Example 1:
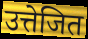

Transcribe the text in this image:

उत्तेजित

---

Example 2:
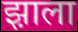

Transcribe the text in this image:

झ़ाला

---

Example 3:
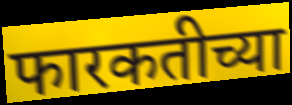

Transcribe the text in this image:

फारकतीच्या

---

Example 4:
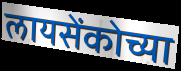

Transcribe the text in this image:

लायसेंकोच्या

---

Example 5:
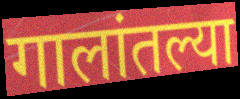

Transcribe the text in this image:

गालांतल्या